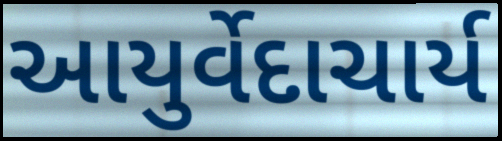
આયુર્વેદાચાર્ય